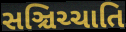
સઞ્ચિચ્ચાતિ